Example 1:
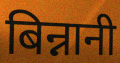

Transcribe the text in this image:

बिन्नानी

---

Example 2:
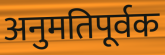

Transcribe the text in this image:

अनुमतिपूर्वक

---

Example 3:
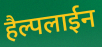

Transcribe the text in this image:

हैल्पलाईन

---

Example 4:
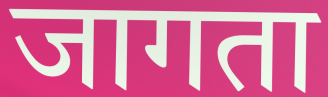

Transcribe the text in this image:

जागता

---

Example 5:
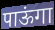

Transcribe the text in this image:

पाऊंगा